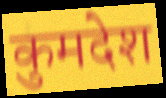
कुमदेश